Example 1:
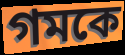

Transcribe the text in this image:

গমকে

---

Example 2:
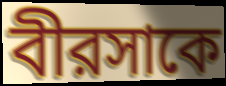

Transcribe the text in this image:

বীরসাকে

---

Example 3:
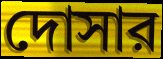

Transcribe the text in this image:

দোসার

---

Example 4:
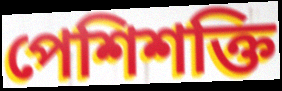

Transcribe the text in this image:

পেশিশক্তি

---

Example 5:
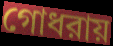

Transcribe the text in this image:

গোধরায়